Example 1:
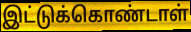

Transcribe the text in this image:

இட்டுக்கொண்டாள்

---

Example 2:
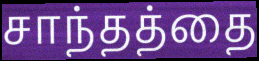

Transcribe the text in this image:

சாந்தத்தை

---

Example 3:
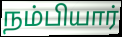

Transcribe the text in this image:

நம்பியார்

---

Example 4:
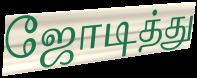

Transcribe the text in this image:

ஜோடித்து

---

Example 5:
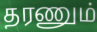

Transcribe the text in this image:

தரணும்